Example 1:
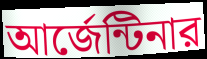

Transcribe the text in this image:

আর্জেন্টিনার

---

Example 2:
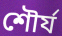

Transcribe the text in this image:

শৌর্য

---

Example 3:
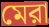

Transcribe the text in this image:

মেরা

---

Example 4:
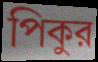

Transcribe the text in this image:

পিকুর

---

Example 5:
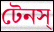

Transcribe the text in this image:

টেনস্